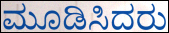
ಮೂಡಿಸಿದರು